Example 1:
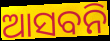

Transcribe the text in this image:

ଆସବନି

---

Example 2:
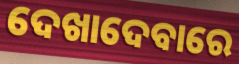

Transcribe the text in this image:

ଦେଖାଦେବାରେ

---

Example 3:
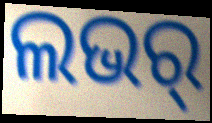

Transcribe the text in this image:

ଲଭର୍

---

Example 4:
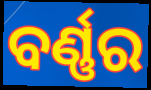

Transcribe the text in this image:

ବର୍ଣ୍ଣର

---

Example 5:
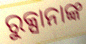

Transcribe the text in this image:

ରୁକ୍ସାନାଙ୍କ